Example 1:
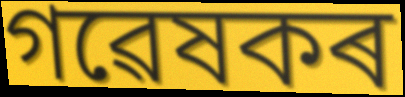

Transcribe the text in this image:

গৱেষকৰ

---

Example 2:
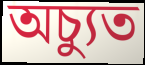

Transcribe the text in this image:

অচ্যুত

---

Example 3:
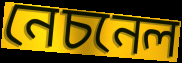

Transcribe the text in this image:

নেচনেল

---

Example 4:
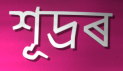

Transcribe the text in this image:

শূদ্ৰৰ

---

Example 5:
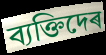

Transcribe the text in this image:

ব্যক্তিদেৰ